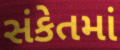
સંકેતમાં